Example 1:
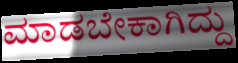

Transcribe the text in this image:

ಮಾಡಬೇಕಾಗಿದ್ದು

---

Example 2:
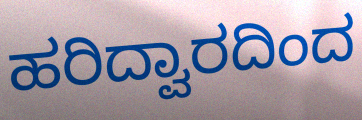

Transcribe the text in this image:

ಹರಿದ್ವಾರದಿಂದ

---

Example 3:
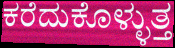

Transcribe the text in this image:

ಕರೆದುಕೊಳ್ಳುತ್ತ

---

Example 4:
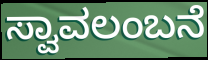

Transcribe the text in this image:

ಸ್ವಾವಲಂಬನೆ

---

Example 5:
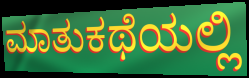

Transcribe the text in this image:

ಮಾತುಕಥೆಯಲ್ಲಿ